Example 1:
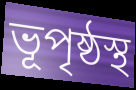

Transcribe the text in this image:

ভূপৃষ্ঠস্থ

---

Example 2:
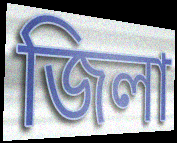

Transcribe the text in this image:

জিলা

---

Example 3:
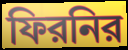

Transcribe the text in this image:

ফিরনির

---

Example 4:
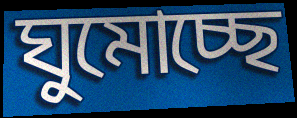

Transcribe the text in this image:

ঘুমোচ্ছে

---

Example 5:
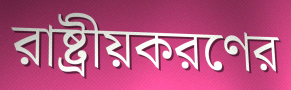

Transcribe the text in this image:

রাষ্ট্রীয়করণের